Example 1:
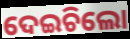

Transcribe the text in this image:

ଦେଇଚିଲୋ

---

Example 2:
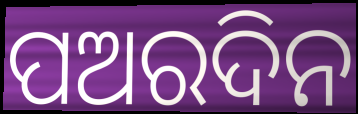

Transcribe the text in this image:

ପଅରଦିନ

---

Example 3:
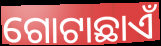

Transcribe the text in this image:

ଗୋଟାଛାଏଁ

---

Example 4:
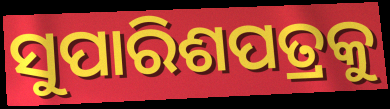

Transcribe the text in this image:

ସୁପାରିଶପତ୍ରକୁ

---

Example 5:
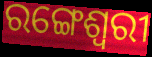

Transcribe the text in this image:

ରଙ୍ଗେଶ୍ୱରୀ